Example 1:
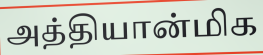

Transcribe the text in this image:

அத்தியான்மிக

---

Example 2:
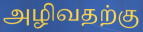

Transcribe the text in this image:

அழிவதற்கு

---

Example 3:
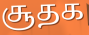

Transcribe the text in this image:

சூதக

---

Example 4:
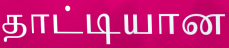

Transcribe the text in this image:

தாட்டியான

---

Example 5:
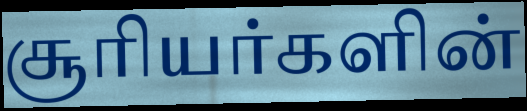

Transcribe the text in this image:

சூரியர்களின்